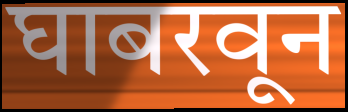
घाबरवून